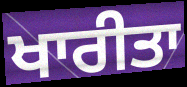
ਖਾਰੀਤਾ